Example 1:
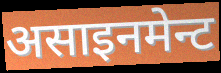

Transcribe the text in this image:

असाइनमेन्ट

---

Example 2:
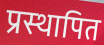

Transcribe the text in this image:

प्रस्थापित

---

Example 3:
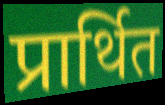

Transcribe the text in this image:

प्रार्थित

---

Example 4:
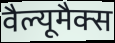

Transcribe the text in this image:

वैल्यूमैक्स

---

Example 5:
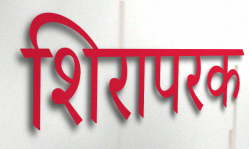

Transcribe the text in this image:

शिरापरक